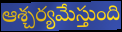
ఆశ్చర్యమేస్తుంది